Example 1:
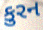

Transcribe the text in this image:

કુરન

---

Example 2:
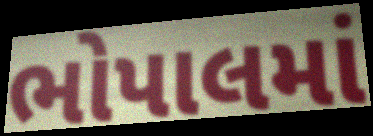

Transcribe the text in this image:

ભોપાલમાં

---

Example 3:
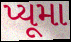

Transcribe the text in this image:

પ્યૂમા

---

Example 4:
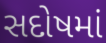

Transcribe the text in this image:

સદોષમાં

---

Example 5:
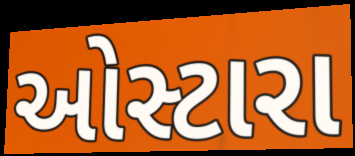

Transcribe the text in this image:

ઓસ્ટારા